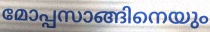
മോപ്പസാങ്ങിനെയും